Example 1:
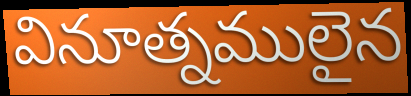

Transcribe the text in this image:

వినూత్నములైన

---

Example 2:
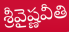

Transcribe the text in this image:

శ్రీవైష్ణవీతి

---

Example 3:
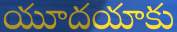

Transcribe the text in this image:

యూదయాకు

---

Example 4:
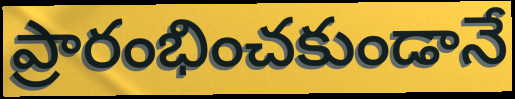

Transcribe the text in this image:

ప్రారంభించకుండానే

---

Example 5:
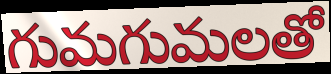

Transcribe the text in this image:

గుమగుమలతో